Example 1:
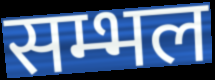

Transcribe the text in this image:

सम्भल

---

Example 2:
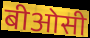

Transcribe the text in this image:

बीओसी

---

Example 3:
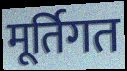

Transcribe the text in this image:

मूर्तिगत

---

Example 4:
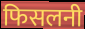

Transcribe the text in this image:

फिसलनी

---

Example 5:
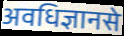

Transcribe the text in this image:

अवधिज्ञानसे